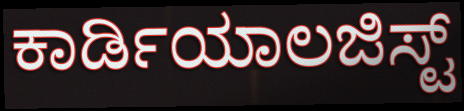
ಕಾರ್ಡಿಯಾಲಜಿಸ್ಟ್